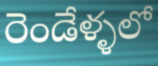
రెండేళ్ళలో